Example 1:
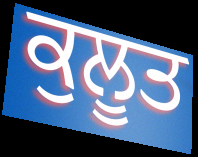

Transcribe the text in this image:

ਕੁਲੂਤ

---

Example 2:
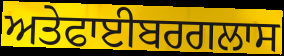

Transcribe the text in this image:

ਅਤੇਫਾਈਬਰਗਲਾਸ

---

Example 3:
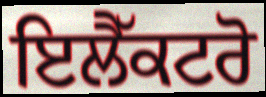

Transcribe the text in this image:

ਇਲੈੱਕਟਰੋ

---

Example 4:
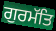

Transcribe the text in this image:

ਗੁਰਮੱਤਿ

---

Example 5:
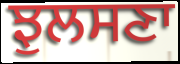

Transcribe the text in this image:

ਝੁਲਸਣਾ